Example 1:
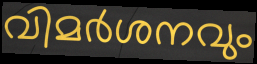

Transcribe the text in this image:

വിമർശനവും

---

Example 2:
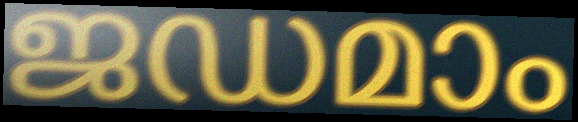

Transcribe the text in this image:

ജഡമാം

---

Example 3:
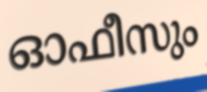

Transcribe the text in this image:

ഓഫീസും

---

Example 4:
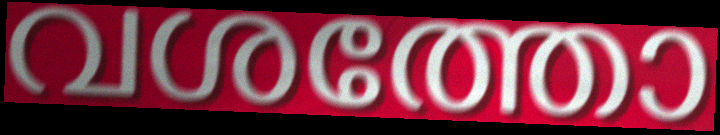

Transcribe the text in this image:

വശത്തോ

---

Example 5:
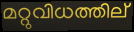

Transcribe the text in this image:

മറ്റുവിധത്തില്